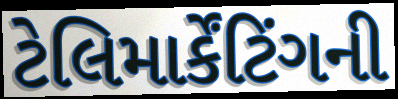
ટેલિમાર્કેંટિંગની